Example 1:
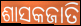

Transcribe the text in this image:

ଶାସକଜାତି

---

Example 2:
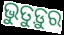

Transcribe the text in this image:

ଭୁତୁଡ଼ୁର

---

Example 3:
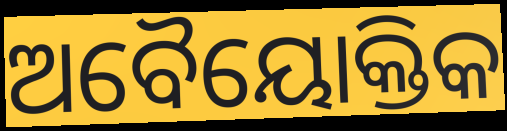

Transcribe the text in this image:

ଅବୈୟୋକ୍ତିକ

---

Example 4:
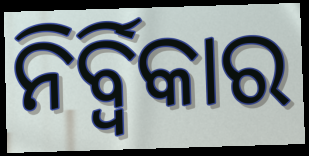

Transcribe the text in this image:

ନିର୍ବ୍ବିକାର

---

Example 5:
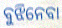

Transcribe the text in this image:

ବୁଝିନେବା